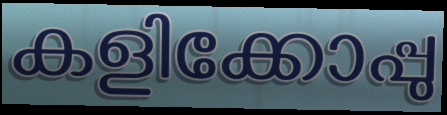
കളിക്കോപ്പു